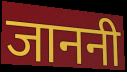
जाननी